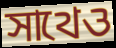
সাথেও